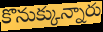
కొనుక్కున్నారు